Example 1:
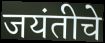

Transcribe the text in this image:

जयंतीचे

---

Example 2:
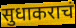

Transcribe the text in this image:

सुधाकराचं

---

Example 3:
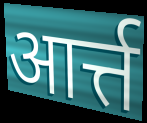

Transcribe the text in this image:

आर्त्त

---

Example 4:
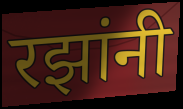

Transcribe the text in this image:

रझांनी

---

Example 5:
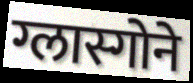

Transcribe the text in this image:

ग्लास्गोने